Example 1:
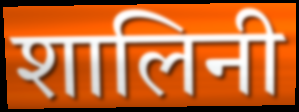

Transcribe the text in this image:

शालिनी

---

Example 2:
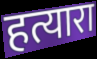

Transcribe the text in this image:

हत्यारा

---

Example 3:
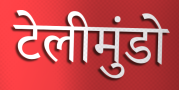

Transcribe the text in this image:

टेलीमुंडो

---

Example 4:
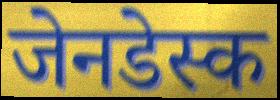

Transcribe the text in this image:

जेनडेस्क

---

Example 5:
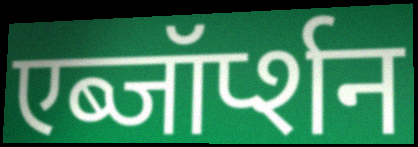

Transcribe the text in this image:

एब्जॉर्प्शन